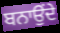
ਬਨਾਉਂਦੇ